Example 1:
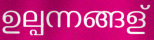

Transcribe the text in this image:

ഉല്പന്നങ്ങള്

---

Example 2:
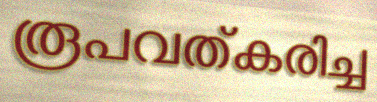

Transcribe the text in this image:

രൂപവത്കരിച്ച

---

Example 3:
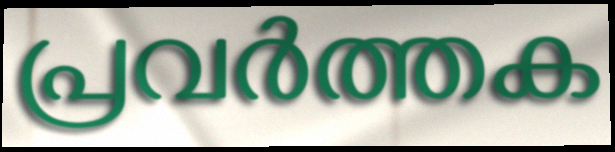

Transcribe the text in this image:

പ്രവർത്തക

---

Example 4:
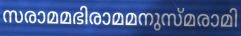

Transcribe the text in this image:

സരാമമഭിരാമമനുസ്മരാമി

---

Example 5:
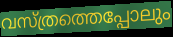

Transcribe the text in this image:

വസ്ത്രത്തെപ്പോലും